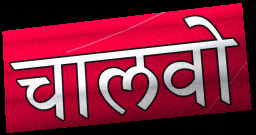
चालवो